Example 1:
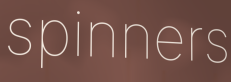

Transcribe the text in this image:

spinners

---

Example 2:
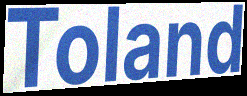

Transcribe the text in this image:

Toland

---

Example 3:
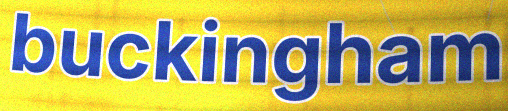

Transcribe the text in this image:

buckingham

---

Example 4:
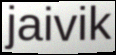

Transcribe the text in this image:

jaivik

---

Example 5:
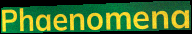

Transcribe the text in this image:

Phaenomena